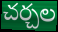
చర్చల